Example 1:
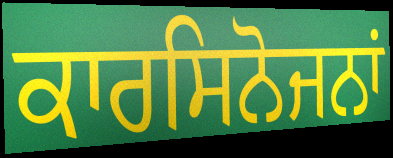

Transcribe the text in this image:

ਕਾਰਸਿਨੋਜਨਾਂ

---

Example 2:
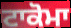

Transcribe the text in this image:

ਟਾਕੋਮਾ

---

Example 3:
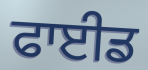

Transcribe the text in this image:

ਫਾਈਡ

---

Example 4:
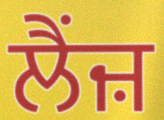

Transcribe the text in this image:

ਲੈਂਜ਼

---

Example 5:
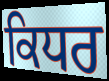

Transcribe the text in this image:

ਕਿਧਰ